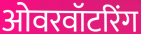
ओवरवॉटरिंग